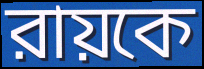
রায়কে